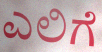
ಎಲಿಗೆ